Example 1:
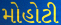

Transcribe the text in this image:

મોહોટી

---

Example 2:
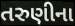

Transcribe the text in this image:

તરુણીના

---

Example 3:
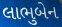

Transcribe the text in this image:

લાભુબેન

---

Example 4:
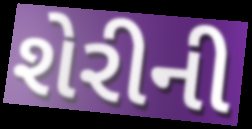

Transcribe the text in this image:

શેરીની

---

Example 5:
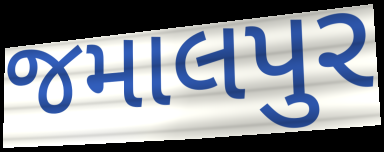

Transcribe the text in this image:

જમાલપુર